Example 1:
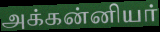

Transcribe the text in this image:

அக்கன்னியர்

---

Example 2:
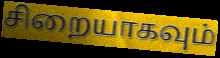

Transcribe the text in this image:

சிறையாகவும்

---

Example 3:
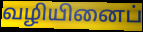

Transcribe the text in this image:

வழியினைப்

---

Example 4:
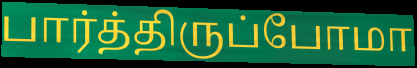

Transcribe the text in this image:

பார்த்திருப்போமா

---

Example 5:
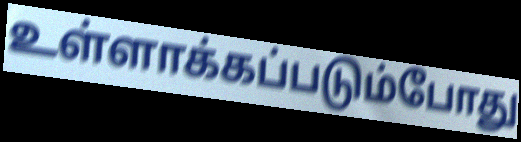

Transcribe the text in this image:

உள்ளாக்கப்படும்போது